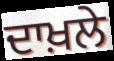
ਦਾਖ਼ਲੇ